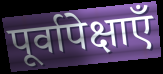
पूर्वापेक्षाएँ